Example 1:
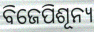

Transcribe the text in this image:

ବିଜେପିଶୂନ୍ୟ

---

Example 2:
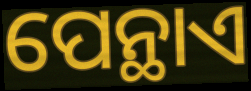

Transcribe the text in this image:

ପେନ୍ଥାଏ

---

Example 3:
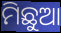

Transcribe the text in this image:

ମିଛୁଆ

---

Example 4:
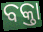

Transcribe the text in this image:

ବକ୍ତା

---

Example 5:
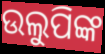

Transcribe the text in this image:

ଉଲୁପିଙ୍କ